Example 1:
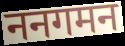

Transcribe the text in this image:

ननगमन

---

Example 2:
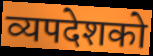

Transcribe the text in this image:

व्यपदेशको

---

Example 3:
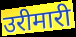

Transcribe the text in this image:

उरीमारी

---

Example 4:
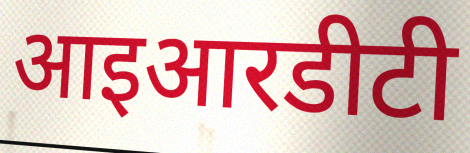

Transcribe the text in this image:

आइआरडीटी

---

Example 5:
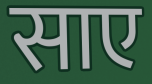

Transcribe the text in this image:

साए